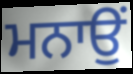
ਮਨਾਉਂ